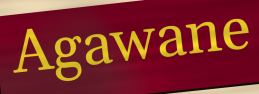
Agawane